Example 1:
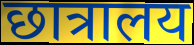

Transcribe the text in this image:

छात्रालय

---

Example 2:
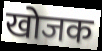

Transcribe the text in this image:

खोजक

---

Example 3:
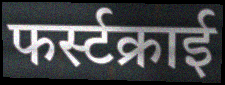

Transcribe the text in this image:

फर्स्टक्राई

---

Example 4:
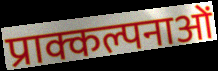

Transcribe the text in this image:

प्राक्कल्पनाओं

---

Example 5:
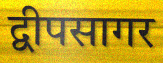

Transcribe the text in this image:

द्वीपसागर